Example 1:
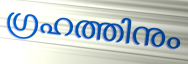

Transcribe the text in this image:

ഗ്രഹത്തിനും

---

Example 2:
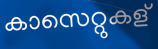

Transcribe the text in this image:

കാസെറ്റുകള്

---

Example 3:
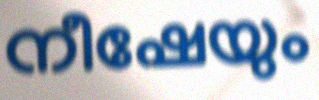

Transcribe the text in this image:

നീഷേയും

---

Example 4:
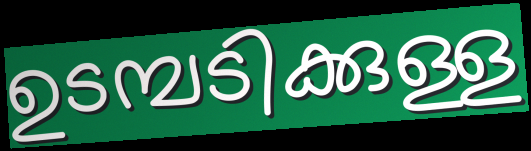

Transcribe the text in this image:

ഉടമ്പടിക്കുള്ള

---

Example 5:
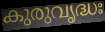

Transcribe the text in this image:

കുരുവൃദ്ധഃ